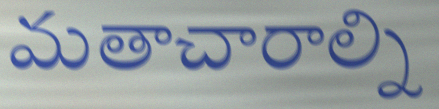
మతాచారాల్ని